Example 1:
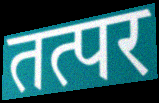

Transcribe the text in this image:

तत्‍पर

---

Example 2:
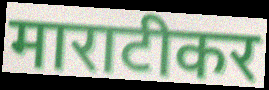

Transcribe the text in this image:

माराटीकर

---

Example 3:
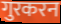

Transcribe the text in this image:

गुरकरन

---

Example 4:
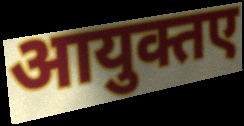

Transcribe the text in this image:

आयुक्तए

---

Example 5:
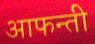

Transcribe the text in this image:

आफन्ती